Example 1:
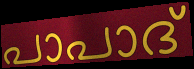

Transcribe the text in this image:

പാപാദ്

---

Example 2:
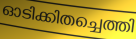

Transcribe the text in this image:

ഓടിക്കിതച്ചെത്തി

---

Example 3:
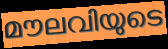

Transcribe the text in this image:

മൗലവിയുടെ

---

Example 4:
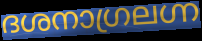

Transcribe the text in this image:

ദശനാഗ്രലഗ്ന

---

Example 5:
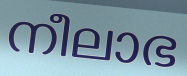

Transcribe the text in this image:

നീലാഭ